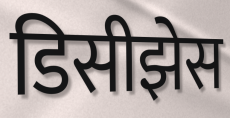
डिसीझेस